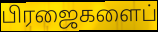
பிரஜைகளைப்